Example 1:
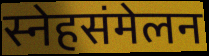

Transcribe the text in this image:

स्नेहसंमेलन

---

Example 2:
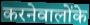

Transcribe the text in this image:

करनेवालोंके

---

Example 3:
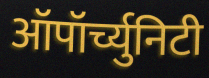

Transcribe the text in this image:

ऑपॉर्च्युनिटी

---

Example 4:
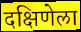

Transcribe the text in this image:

दक्षिणेला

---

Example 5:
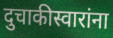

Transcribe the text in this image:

दुचाकीस्वारांना